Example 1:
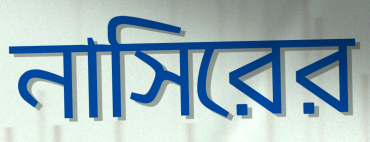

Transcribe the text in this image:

নাসিরের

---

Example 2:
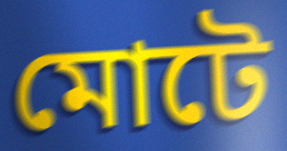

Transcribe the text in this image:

মোটে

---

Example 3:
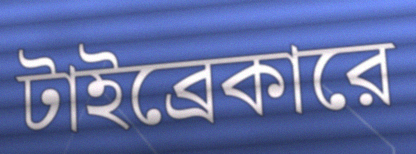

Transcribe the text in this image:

টাইব্রেকারে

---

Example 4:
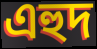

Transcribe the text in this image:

এহুদ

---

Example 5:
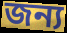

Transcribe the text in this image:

জন্য